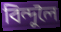
বিন্দুলৈ